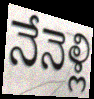
నేనెళ్లి